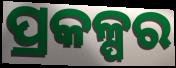
ପ୍ରକଳ୍ପର